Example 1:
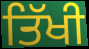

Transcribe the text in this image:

ਤਿੱਖੀ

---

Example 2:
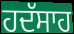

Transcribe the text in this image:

ਹਦੱਸਾਹ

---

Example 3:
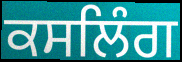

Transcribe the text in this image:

ਕਸਲਿੰਗ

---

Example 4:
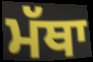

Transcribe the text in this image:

ਮੱਥਾ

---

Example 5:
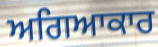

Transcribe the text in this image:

ਅਗਿਆਕਾਰ